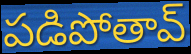
పడిపోతావ్